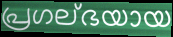
പ്രഗല്ഭയായ